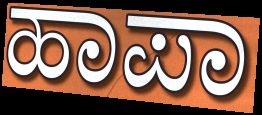
ಹಾಪಾ